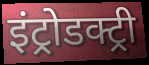
इंट्रोडक्ट्री